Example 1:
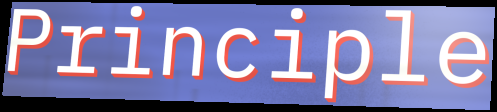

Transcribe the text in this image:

Principle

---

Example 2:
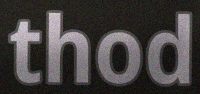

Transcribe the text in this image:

thod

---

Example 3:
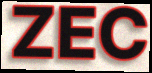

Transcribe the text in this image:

ZEC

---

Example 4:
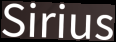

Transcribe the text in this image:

Sirius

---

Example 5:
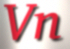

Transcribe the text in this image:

Vn